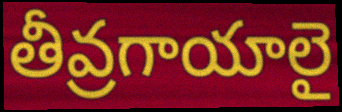
తీవ్రగాయాలై